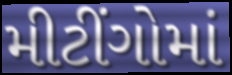
મીટીંગોમાં